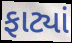
ફાટ્યાં